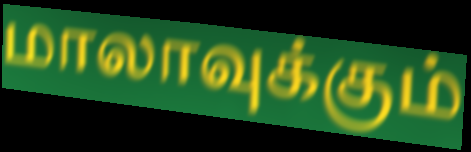
மாலாவுக்கும்